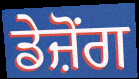
ਡੇਜ਼ੋਂਗ